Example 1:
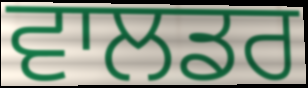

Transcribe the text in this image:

ਵਾਲਡਰ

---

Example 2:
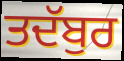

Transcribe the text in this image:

ਤਦੱਬੁਰ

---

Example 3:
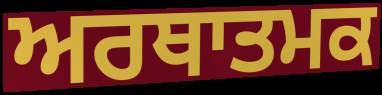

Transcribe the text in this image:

ਅਰਥਾਤਮਕ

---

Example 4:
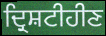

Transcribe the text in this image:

ਦ੍ਰਿਸ਼ਟੀਹੀਣ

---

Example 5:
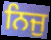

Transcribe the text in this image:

ਨਿਜੁ